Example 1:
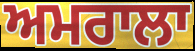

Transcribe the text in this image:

ਅਮਰਾਲਾ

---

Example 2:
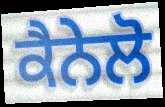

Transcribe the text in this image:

ਕੈਨੇਲੋ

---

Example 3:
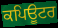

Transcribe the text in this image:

ਕਪਿਊਟਰ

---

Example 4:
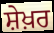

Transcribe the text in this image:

ਸ਼ੇਖ਼ਰ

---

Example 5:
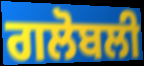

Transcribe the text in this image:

ਗਲੋਬਲੀ